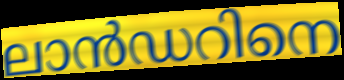
ലാൻഡറിനെ